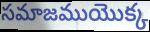
సమాజముయొక్క